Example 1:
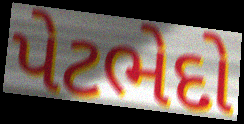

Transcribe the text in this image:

પેટભેદો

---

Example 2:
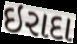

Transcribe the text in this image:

ઇરાદા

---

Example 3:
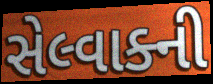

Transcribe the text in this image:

સેલ્વાક્ની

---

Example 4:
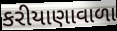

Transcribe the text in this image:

કરીયાણાવાળા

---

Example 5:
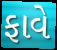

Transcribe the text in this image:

ફાવે